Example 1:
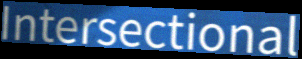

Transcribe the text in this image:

Intersectional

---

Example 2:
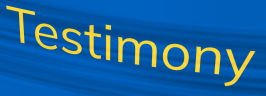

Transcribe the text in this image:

Testimony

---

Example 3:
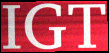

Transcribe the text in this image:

IGT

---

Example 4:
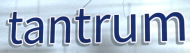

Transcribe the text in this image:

tantrum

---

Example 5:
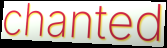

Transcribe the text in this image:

chanted